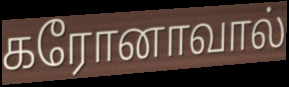
கரோனாவால்